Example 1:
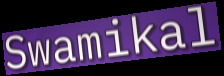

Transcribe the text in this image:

Swamikal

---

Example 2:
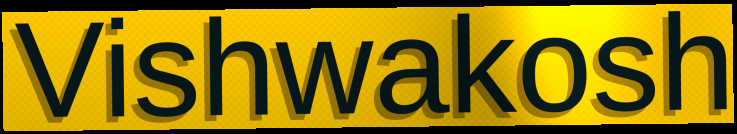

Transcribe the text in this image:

Vishwakosh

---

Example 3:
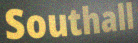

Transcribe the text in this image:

Southall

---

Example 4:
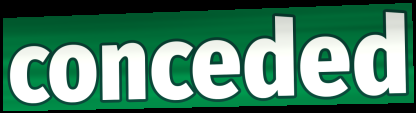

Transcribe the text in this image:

conceded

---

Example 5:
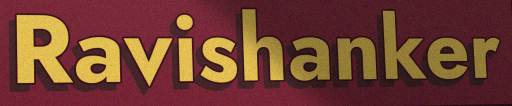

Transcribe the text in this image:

Ravishanker